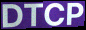
DTCP